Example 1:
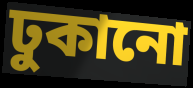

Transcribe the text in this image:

ঢুকানো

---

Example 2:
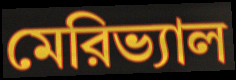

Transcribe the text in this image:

মেরিভ্যাল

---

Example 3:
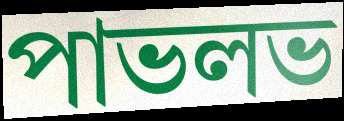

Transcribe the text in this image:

পাভলভ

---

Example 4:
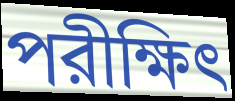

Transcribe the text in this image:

পরীক্ষিৎ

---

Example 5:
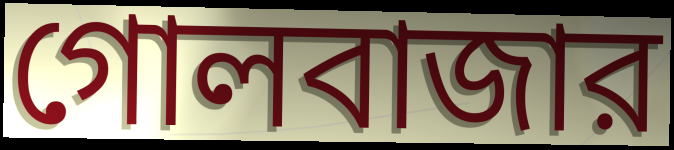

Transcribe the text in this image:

গোলবাজার